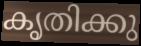
കൃതിക്കു